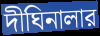
দীঘিনালার